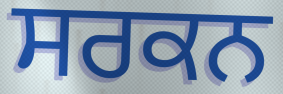
ਸਰਕਨ